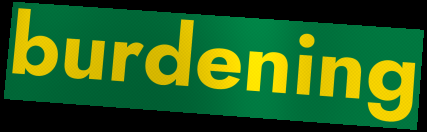
burdening